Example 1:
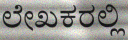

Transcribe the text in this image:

ಲೇಖಕರಲ್ಲಿ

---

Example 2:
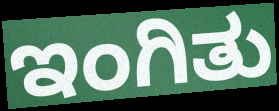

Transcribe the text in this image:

ಇಂಗಿತು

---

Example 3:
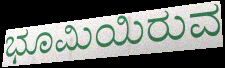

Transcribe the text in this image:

ಭೂಮಿಯಿರುವ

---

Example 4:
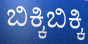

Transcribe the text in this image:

ಬಿಕ್ಕಿಬಿಕ್ಕಿ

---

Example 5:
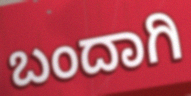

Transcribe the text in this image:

ಬಂದಾಗಿ